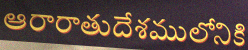
ఆరారాతుదేశములోనికి